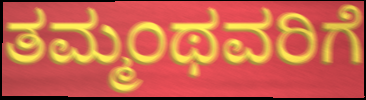
ತಮ್ಮಂಥವರಿಗೆ